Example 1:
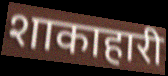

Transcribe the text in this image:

शाकाहारी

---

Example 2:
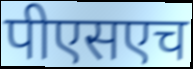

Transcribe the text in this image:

पीएसएच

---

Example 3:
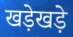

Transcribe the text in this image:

खड़ेखड़े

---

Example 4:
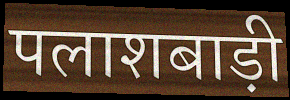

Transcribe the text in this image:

पलाशबाड़ी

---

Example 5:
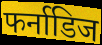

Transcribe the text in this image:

फर्नाडिज